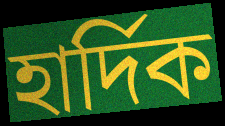
হার্দিক